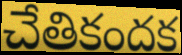
చేతికందక